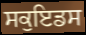
ਸਕੁਇਡਸ